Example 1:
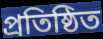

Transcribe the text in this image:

প্ৰতিষ্ঠিত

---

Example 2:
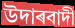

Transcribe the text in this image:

উদাৰবাদী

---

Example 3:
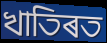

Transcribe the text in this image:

খাতিৰত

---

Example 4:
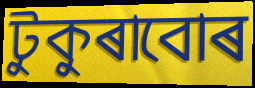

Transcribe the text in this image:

টুকুৰাবোৰ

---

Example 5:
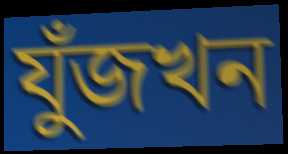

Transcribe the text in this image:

যুঁজখন